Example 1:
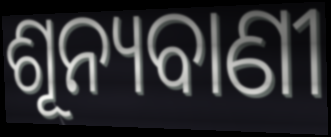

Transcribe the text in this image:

ଶୂନ୍ୟବାଣୀ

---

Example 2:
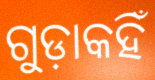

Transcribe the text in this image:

ଗୁଡ଼ାକହିଁ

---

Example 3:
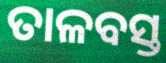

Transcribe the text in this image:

ତାଳବସ୍ତ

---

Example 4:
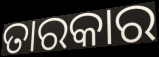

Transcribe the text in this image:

ତାରକାର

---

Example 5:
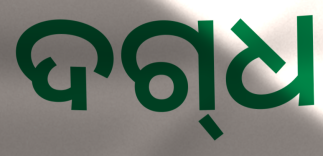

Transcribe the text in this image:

ଦଗ୍‌ଧ